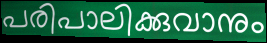
പരിപാലിക്കുവാനും